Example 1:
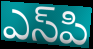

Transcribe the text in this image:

ఎస్‌పి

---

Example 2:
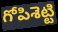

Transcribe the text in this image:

గోపిశెట్టి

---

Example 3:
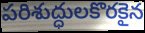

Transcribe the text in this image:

పరిశుద్ధులకొరకైన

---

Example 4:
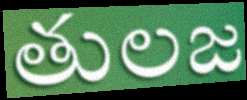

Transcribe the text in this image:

తులజ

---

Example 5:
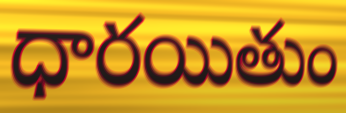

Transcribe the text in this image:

ధారయితుం